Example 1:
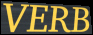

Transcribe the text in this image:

VERB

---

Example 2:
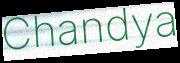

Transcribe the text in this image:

Chandya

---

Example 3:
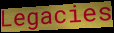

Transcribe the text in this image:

Legacies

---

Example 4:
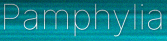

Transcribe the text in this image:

Pamphylia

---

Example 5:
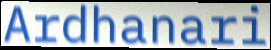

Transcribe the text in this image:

Ardhanari